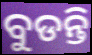
ବୁଡନ୍ତି